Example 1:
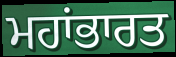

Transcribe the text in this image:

ਮਹਾਂਭਾਰਤ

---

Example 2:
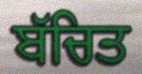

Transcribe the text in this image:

ਬੱਚਿਤ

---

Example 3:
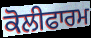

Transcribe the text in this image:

ਕੋਲੀਫਾਰਮ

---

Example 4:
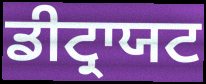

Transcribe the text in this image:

ਡੀਟ੍ਰਾਯਟ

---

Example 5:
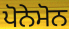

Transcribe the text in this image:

ਪੋਨੇਮੋਨ